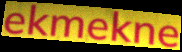
ekmekne